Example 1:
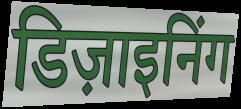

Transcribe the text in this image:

डिज़ाइनिंग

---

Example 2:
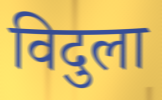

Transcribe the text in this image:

विदुला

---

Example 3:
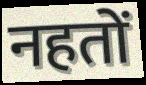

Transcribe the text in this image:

नहतों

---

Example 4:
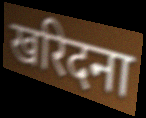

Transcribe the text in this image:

खरिदना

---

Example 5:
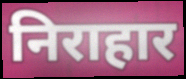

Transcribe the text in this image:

निराहार